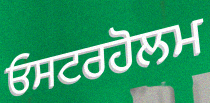
ਓਸਟਰਹੋਲਮ